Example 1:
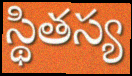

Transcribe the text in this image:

స్థితస్య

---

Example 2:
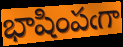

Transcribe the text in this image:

భాషింపఁగా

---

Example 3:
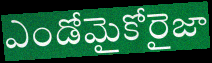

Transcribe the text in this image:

ఎండోమైకోరైజా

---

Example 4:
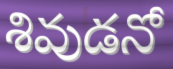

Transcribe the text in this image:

శివుడనో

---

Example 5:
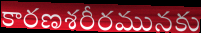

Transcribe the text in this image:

కారణశరీరమునకు